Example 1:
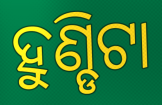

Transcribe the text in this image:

ହୁଣ୍ଡିଟା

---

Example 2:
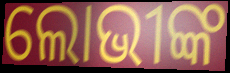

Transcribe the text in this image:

ଲୋଭୀଙ୍କ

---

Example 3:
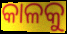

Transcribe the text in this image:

କାଳକୁ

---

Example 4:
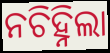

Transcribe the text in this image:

ନଚିହ୍ନିଲା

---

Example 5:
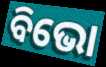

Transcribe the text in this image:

ବିଭୋ